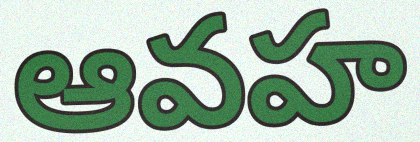
ఆవహ